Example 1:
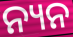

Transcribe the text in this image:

ନ୍ୟନ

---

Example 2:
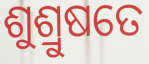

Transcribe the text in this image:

ଶୁଶ୍ରୁଷତେ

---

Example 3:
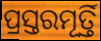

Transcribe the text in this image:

ପ୍ରସ୍ତରମୂର୍ତ୍ତି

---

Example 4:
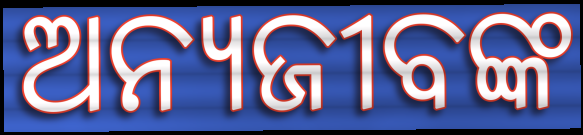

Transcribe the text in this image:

ଅନ୍ୟଜୀବଙ୍କ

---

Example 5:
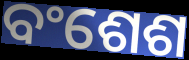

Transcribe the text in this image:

ବଂଶେଶ